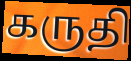
கருதி